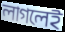
লাগলেই